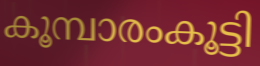
കൂമ്പാരംകൂട്ടി